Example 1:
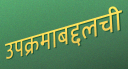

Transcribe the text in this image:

उपक्रमाबद्दलची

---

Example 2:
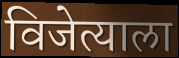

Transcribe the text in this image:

विजेत्याला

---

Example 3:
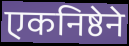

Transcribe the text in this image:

एकनिष्ठेने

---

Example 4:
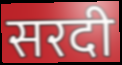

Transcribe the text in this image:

सरदी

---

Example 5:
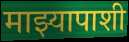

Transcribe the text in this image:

माझ्यापाशी